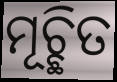
ମୂଚ୍ଛିତ